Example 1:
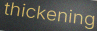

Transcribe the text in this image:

thickening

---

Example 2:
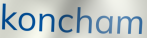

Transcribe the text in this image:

koncham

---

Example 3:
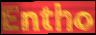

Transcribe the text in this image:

Entho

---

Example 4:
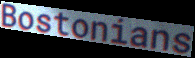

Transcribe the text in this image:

Bostonians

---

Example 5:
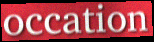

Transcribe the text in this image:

occation